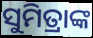
ସୁମିତ୍ରାଙ୍କ